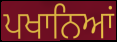
ਪਖਾਨਿਆਂ